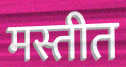
मस्तीत